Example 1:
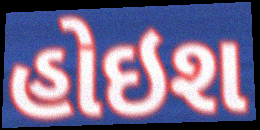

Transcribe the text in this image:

હોઇશ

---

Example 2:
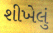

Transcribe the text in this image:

શીખેલું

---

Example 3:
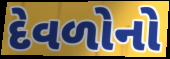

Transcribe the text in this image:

દેવળોનો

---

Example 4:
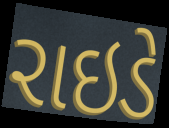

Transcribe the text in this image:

રાઇડે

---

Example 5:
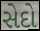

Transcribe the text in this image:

સેદો